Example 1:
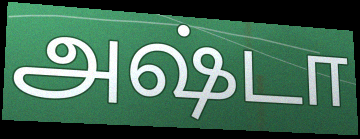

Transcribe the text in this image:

அஷ்டா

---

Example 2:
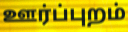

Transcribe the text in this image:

ஊர்ப்புறம்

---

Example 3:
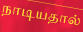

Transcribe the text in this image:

நாடியதால்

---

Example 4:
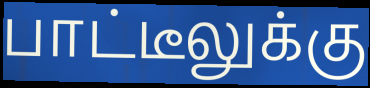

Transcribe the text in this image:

பாட்டீலுக்கு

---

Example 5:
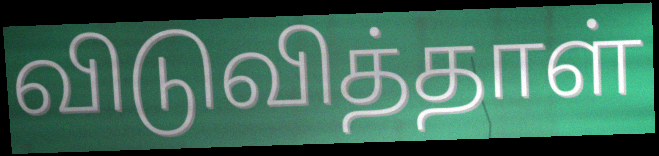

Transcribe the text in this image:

விடுவித்தாள்